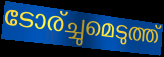
ടോര്ച്ചുമെടുത്ത്